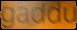
gaddu